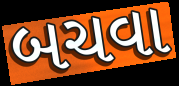
બચવા